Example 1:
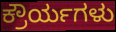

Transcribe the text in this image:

ಕ್ರೌರ್ಯಗಳು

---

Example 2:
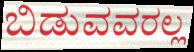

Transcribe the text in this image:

ಬಿಡುವವರಲ್ಲ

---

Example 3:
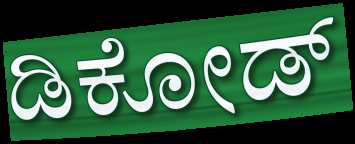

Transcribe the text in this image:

ಡಿಕೋಡ್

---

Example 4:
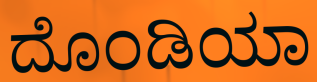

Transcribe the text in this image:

ದೊಂಡಿಯಾ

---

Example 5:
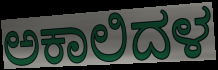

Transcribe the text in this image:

ಅಕಾಲಿದಳ